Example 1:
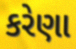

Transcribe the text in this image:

કરેણા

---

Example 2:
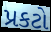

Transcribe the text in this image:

પ્રકટો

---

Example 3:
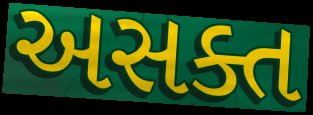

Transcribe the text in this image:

અસક્ત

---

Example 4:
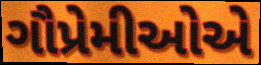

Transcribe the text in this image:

ગૌપ્રેમીઓએ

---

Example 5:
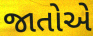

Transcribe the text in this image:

જાતોએ